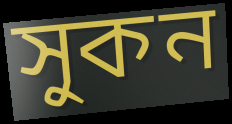
সুকন